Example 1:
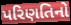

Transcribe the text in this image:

પરિણતિનો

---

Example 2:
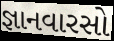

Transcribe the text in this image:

જ્ઞાનવારસો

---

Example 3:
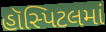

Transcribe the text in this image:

હૉસ્પિટલમાં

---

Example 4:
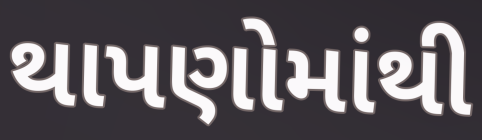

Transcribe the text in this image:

થાપણોમાંથી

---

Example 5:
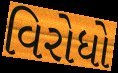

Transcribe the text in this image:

વિરોધો